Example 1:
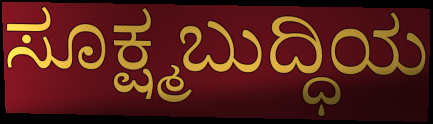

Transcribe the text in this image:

ಸೂಕ್ಷ್ಮಬುದ್ಧಿಯ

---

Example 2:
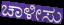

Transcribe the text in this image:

ಚಾಳೀಸು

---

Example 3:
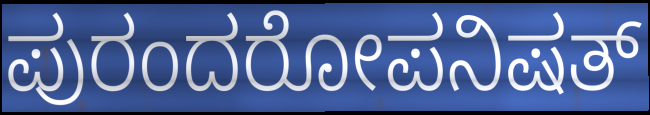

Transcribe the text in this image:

ಪುರಂದರೋಪನಿಷತ್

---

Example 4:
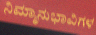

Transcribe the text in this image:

ನಿಮ್ಮಾನುಭಾವಿಗಳ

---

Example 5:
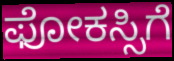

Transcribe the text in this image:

ಫೋಕಸ್ಸಿಗೆ